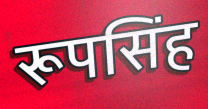
रूपसिंह